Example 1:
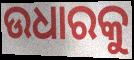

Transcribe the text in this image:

ଉଧାରକୁ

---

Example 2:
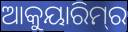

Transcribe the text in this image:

ଆକୁୟାରିମ୍‌ର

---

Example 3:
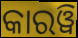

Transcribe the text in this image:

କାରୱି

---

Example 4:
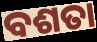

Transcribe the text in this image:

ବଶତା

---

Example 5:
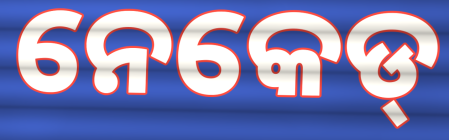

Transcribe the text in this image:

ନେକେଡ୍